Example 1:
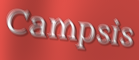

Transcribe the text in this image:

Campsis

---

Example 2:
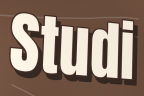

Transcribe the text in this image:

Studi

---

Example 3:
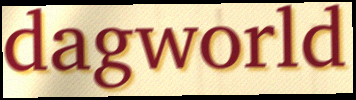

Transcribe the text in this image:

dagworld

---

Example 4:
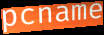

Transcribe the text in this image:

pcname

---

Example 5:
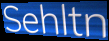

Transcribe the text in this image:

Sehltn